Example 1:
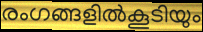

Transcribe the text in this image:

രംഗങ്ങളിൽകൂടിയും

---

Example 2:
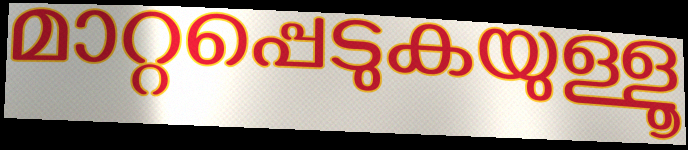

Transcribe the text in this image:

മാറ്റപ്പെടുകയുള്ളൂ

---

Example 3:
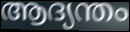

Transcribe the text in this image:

ആദ്യന്തം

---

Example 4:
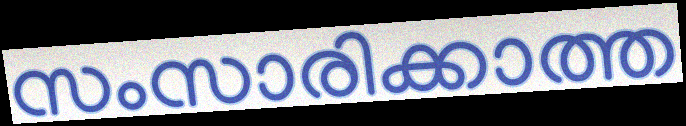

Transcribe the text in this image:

സംസാരിക്കാത്ത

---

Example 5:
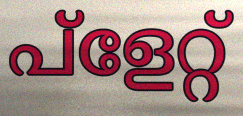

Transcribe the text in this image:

പ്ളേറ്റ്